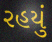
રહયું